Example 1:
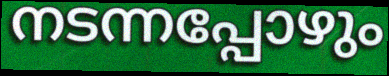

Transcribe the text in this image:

നടന്നപ്പോഴും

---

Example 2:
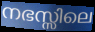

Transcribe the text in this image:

നഭസ്സിലെ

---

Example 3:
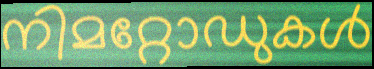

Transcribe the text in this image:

നിമറ്റോഡുകൾ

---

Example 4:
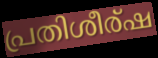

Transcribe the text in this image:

പ്രതിശീര്ഷ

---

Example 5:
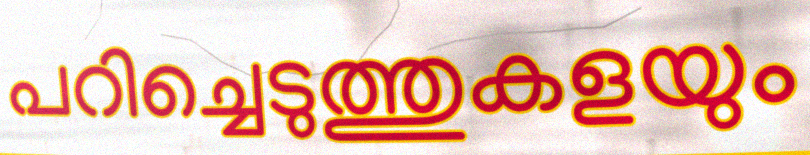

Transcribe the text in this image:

പറിച്ചെടുത്തുകളയും